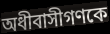
অধীবাসীগণকে